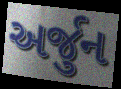
અર્જુન